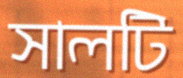
সালটি